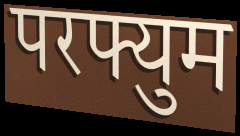
परफ्युम